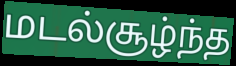
மடல்சூழ்ந்த